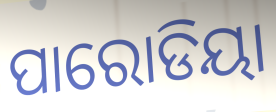
ପାରୋଡିୟା